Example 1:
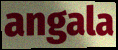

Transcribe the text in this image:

angala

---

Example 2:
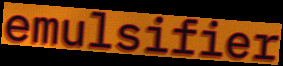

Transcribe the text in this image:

emulsifier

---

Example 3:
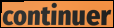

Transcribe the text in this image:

continuer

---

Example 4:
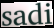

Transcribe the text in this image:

sadi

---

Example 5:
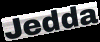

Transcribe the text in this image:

Jedda